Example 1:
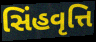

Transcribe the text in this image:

સિંહવૃત્તિ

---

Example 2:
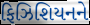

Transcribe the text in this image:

ફિઝિશિયનને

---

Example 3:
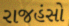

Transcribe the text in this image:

રાજહંસો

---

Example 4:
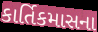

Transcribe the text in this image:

કાર્તિકમાસના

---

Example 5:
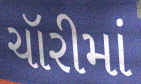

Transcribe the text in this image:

ચૉરીમાં